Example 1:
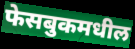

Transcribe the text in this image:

फेसबुकमधील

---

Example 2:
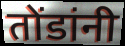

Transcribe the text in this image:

तोंडांनी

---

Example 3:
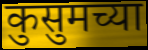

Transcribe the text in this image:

कुसुमच्या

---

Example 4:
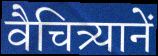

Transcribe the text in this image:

वैचित्र्यानें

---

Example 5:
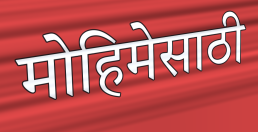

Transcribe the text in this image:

मोहिमेसाठी